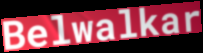
Belwalkar